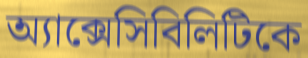
অ্যাক্সেসিবিলিটিকে